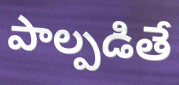
పాల్పడితే